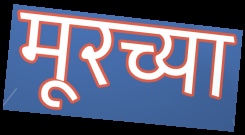
मूरच्या